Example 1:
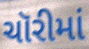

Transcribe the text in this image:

ચૉરીમાં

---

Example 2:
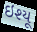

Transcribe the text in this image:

ઇશ્યૂ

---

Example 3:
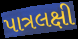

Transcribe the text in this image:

પાત્રલક્ષી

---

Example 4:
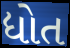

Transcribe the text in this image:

દ્યોત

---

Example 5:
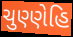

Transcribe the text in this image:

ચુણ્ણેહિ